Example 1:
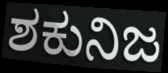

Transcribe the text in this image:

ಶಕುನಿಜ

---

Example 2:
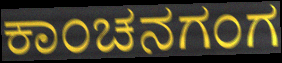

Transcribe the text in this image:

ಕಾಂಚನಗಂಗ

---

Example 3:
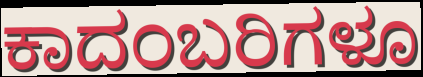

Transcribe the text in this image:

ಕಾದಂಬರಿಗಳೂ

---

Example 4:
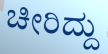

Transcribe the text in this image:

ಚೀರಿದ್ದು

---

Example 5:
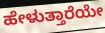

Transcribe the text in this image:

ಹೇಳುತ್ತಾರೆಯೇ